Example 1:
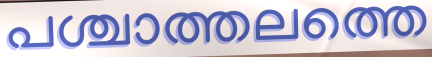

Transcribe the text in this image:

പശ്ചാത്തലത്തെ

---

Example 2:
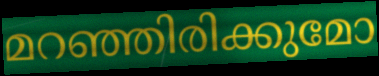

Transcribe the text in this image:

മറഞ്ഞിരിക്കുമോ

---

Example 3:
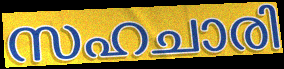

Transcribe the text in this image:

സഹചാരി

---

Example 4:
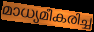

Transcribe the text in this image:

മാധ്യമീകരിച്ച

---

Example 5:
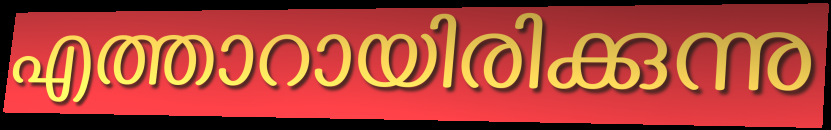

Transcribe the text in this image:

എത്താറായിരിക്കുന്നു